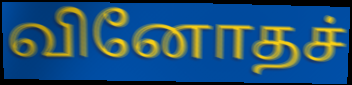
வினோதச்